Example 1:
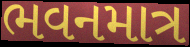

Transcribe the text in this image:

ભવનમાત્ર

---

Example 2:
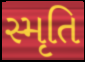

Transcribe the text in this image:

સ્મૃતિ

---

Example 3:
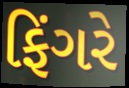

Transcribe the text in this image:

ફિંગરે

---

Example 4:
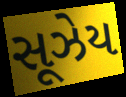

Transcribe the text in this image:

સૂઝેય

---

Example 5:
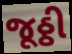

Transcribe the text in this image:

જૂઠ્ઠી